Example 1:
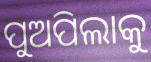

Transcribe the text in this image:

ପୁଅପିଲାକୁ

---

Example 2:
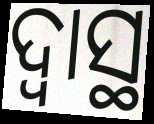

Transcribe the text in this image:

ଦ୍ୱାସ୍ଥ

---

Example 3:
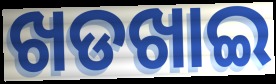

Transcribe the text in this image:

ଖଡଖାଇ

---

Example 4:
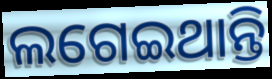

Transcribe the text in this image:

ଲଗେଇଥାନ୍ତି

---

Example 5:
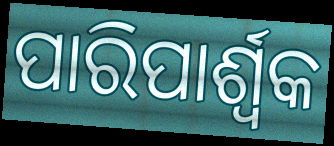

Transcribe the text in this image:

ପାରିପାର୍ଶ୍ଵକ